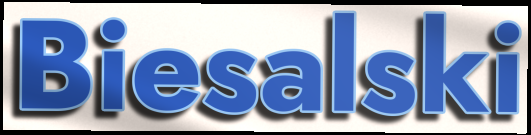
Biesalski